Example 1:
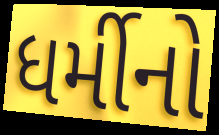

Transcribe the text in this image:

ધર્મીનો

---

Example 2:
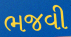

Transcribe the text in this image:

ભજવી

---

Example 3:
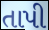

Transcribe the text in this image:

તાપી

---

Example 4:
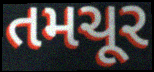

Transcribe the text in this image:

તમચૂર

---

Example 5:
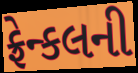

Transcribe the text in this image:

ફ્રેન્કલની